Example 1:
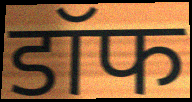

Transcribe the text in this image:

डॉफ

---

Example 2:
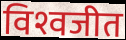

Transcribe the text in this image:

विश्वजीत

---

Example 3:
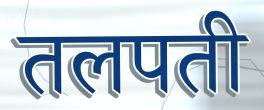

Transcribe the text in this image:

तलपती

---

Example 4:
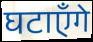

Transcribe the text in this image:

घटाएँगे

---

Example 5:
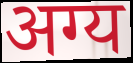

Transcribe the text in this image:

अग्य